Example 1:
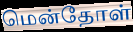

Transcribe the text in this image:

மென்தோள்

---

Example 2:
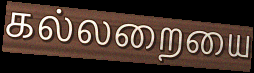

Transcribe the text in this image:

கல்லறையை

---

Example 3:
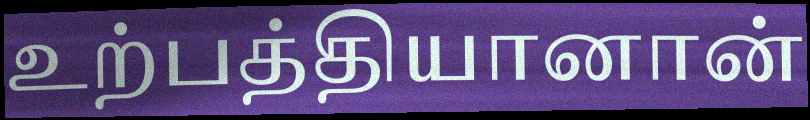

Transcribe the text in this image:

உற்பத்தியானான்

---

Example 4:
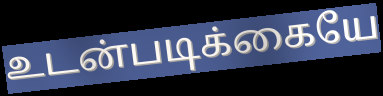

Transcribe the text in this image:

உடன்படிக்கையே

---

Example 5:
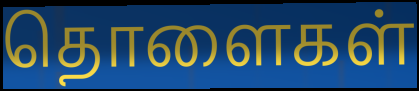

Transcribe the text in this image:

தொளைகள்